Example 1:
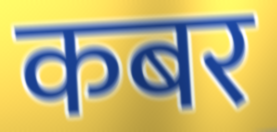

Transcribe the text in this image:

कबर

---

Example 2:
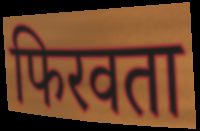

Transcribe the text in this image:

फिरवता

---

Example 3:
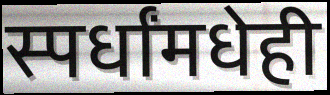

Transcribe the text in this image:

स्पर्धांमधेही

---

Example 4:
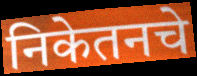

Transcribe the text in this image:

निकेतनचे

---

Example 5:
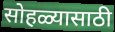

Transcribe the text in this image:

सोहळ्यासाठी